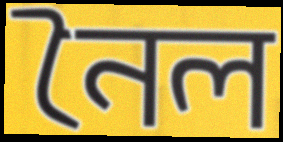
নৈল